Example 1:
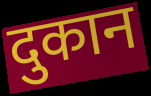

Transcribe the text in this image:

दुकान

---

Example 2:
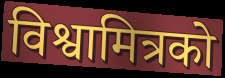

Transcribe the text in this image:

विश्वामित्रको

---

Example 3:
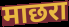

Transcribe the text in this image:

माछरा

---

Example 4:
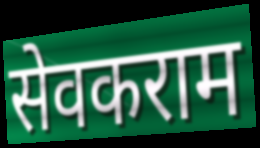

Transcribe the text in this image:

सेवकराम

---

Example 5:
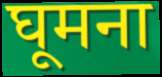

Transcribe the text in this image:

घूमना